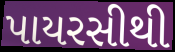
પાયરસીથી